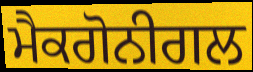
ਮੈਕਗੋਨੀਗਲ